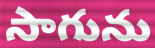
సాగును